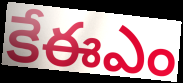
కేఈఎం